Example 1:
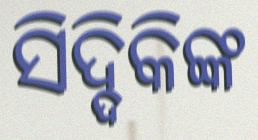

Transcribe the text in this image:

ସିଦ୍ଦିକିଙ୍କ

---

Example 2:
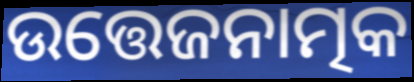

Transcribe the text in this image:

ଉତ୍ତେଜନାତ୍ମକ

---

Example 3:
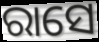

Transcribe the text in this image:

ରାସେ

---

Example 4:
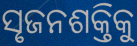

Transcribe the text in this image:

ସୃଜନଶକ୍ତିକୁ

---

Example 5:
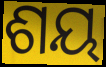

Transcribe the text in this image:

ଶୟ